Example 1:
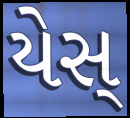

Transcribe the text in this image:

યેસ્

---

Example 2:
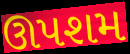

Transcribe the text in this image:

ઊપશમ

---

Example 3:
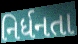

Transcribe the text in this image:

નિર્ધનતા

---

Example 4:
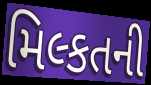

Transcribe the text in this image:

મિલ્કતની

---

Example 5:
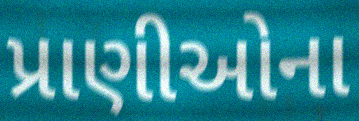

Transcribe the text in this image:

પ્રાણીઓના